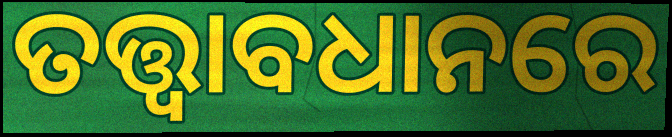
ତତ୍ତ୍ୱାବଧାନରେ